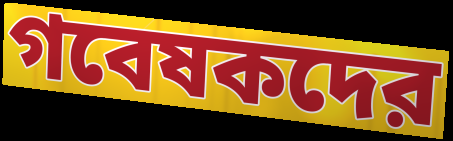
গবেষকদের